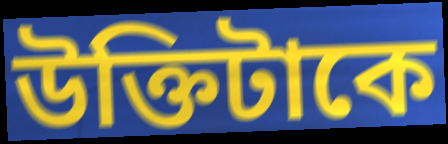
উক্তিটাকে